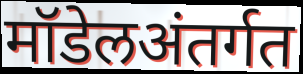
मॉडेलअंतर्गत